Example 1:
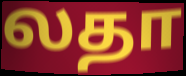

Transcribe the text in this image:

லதா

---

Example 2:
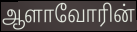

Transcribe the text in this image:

ஆளாவோரின்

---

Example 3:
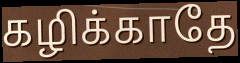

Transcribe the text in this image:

கழிக்காதே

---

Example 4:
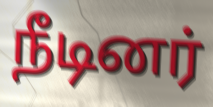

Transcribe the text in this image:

நீடினர்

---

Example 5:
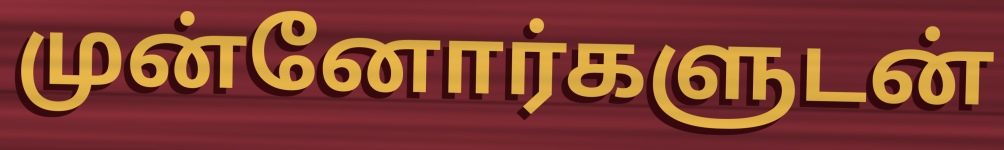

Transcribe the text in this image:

முன்னோர்களுடன்